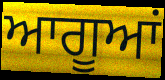
ਆਗੂਆਂ